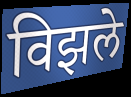
विझले